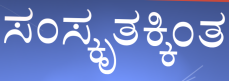
ಸಂಸ್ಕೃತಕ್ಕಿಂತ